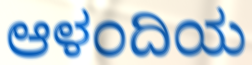
ಆಳಂದಿಯ